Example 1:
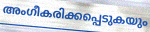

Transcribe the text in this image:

അംഗീകരിക്കപ്പെടുകയും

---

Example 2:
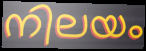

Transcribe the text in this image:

നിലയം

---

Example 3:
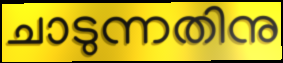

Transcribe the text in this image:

ചാടുന്നതിനു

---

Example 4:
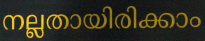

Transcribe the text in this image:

നല്ലതായിരിക്കാം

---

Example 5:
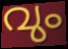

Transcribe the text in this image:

വും